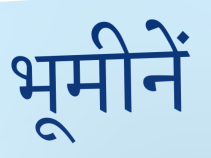
भूमीनें